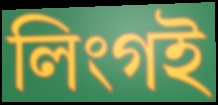
লিংগই